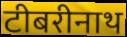
टीबरीनाथ